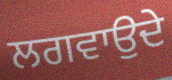
ਲਗਵਾਉਦੇ